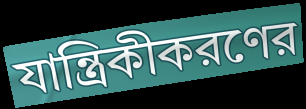
যান্ত্রিকীকরণের